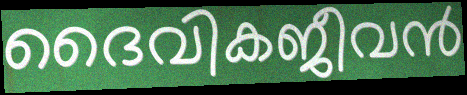
ദൈവികജീവൻ